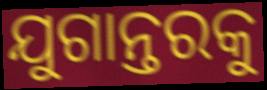
ଯୁଗାନ୍ତରକୁ